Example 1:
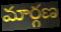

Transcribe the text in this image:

మార్గణ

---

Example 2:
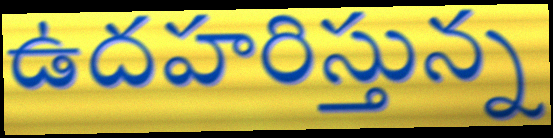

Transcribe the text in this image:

ఉదహరిస్తున్న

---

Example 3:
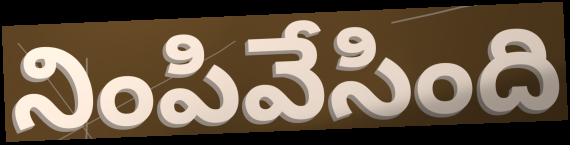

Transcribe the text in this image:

నింపివేసింది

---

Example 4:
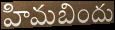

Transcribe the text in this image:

హిమబిందు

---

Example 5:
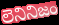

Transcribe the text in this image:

లెనినిజం